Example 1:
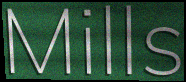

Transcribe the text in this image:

Mills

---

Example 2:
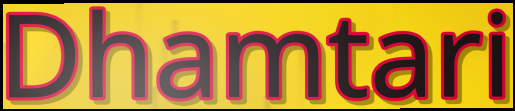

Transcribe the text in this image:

Dhamtari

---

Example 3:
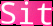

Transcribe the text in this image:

Sit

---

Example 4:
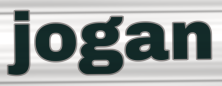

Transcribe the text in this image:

jogan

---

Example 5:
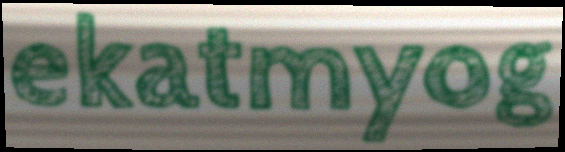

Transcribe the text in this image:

ekatmyog